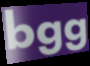
bgg